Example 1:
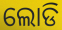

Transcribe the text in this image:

ଲୋଡି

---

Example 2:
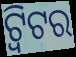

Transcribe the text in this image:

ଟ୍ୱିଟର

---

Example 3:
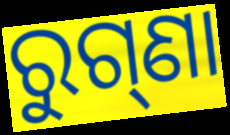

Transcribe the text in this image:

ରୁଗ୍‌ଣା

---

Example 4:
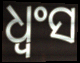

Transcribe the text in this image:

ଧ୍ୱଂସ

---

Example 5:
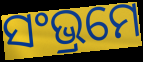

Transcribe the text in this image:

ସଂଭ୍ରମେ